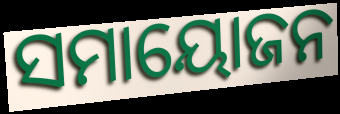
ସମାୟୋଜନ